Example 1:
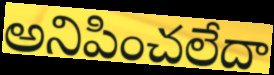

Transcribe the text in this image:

అనిపించలేదా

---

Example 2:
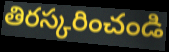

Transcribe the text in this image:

తిరస్కరించండి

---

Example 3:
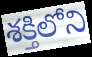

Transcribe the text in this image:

శక్తిలోని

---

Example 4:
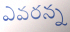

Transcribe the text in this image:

ఎవరన్న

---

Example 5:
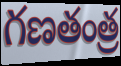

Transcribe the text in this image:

గణతంత్ర